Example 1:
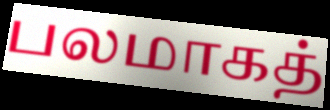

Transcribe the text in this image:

பலமாகத்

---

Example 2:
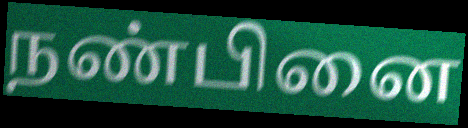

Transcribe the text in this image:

நண்பினை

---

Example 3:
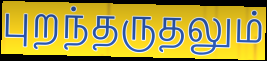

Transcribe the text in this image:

புறந்தருதலும்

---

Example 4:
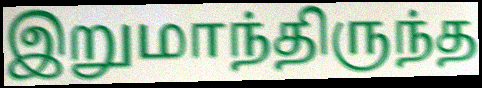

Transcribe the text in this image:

இறுமாந்திருந்த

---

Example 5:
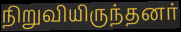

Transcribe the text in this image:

நிறுவியிருந்தனர்